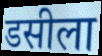
डसीला